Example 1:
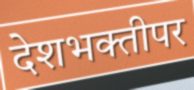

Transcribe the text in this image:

देशभक्तीपर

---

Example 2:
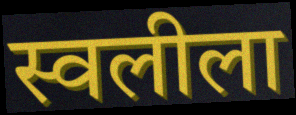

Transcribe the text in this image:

स्वलीला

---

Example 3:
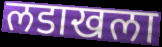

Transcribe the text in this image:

लडाखला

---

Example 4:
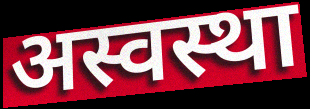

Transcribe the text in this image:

अस्वस्था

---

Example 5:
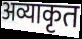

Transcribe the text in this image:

अव्याकृत